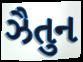
ઝૈતુન